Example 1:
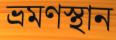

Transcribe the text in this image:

ভ্রমণস্থান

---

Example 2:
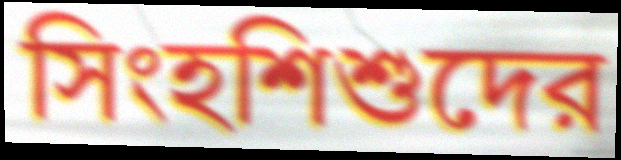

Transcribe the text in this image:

সিংহশিশুদের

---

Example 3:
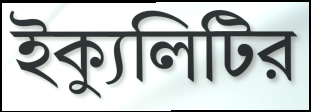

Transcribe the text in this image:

ইক্যুলিটির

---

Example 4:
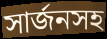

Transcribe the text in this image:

সার্জনসহ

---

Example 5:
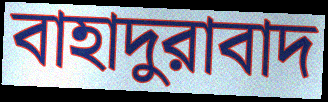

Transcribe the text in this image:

বাহাদুরাবাদ